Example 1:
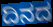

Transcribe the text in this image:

ದಿನದ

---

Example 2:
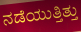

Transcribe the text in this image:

ನಡೆಯುತ್ತಿತ್ತು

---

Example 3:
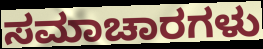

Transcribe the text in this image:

ಸಮಾಚಾರಗಳು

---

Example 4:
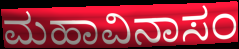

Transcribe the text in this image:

ಮಹಾವಿನಾಸಂ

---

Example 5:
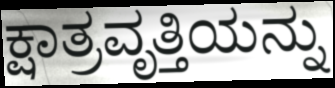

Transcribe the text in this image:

ಕ್ಷಾತ್ರವೃತ್ತಿಯನ್ನು